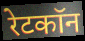
रेटकॉन